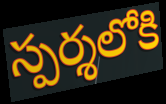
స్పర్శలోకి